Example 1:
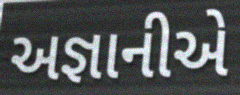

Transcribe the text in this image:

અજ્ઞાનીએ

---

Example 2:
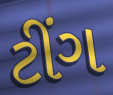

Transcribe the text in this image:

ટીંગ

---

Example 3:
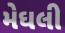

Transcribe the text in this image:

મેઘલી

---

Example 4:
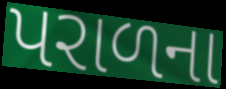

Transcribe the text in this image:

પરાળના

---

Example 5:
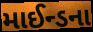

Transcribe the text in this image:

માઈન્ડના